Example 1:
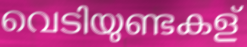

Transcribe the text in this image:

വെടിയുണ്ടകള്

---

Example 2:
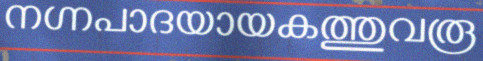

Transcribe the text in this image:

നഗ്നപാദയായകത്തുവരൂ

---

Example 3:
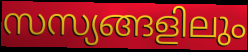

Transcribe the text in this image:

സസ്യങ്ങളിലും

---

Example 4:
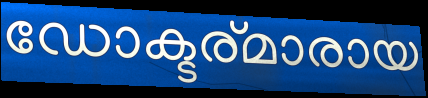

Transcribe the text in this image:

ഡോക്ടര്മാരായ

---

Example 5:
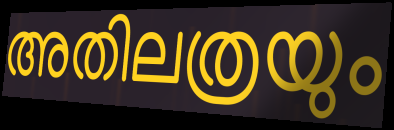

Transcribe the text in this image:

അതിലത്രയും